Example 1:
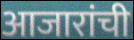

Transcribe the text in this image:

आजारांची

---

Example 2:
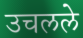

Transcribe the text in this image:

उचलले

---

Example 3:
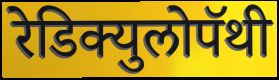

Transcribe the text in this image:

रेडिक्युलोपॅथी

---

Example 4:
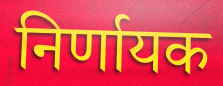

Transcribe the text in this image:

निर्णायक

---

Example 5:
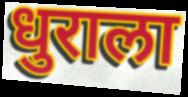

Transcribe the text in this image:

धुराला